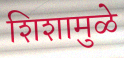
शिशामुळे